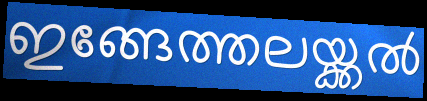
ഇങ്ങേത്തലയ്ക്കൽ